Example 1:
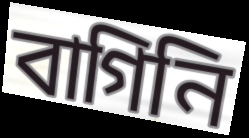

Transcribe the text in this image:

বাগিনি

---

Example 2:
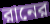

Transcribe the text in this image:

রানের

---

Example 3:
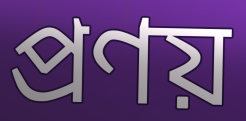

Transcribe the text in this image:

প্রণয়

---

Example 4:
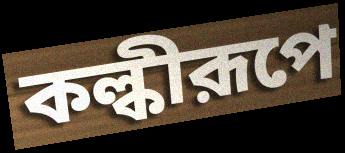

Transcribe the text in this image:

কল্কীরূপে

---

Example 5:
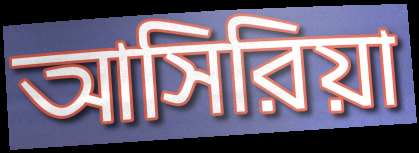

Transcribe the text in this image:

আসিরিয়া